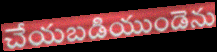
చేయబడియుండెను